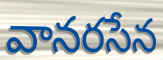
వానరసేన